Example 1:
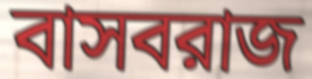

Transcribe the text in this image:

বাসবরাজ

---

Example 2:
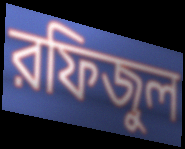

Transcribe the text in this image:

রফিজুল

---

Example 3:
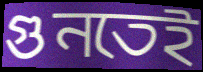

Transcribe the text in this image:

গুনতেই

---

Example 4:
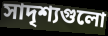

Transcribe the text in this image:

সাদৃশ্যগুলো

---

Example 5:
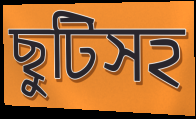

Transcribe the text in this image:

ছুটিসহ